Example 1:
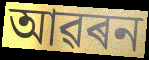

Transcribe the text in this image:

আৱৰন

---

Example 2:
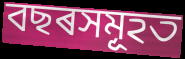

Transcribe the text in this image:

বছৰসমূহত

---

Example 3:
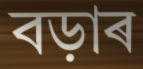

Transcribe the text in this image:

বড়াৰ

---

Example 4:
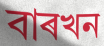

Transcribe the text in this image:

বাৰখন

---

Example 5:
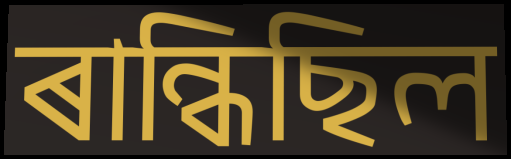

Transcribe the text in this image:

ৰান্ধিছিল